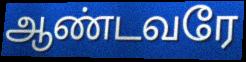
ஆண்டவரே